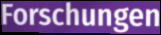
Forschungen